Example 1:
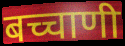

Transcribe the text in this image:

बच्चाणी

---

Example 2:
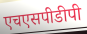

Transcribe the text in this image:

एचएसपीडीपी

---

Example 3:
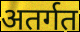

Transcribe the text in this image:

अतर्गत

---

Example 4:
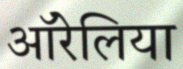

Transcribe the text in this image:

ऑरेलिया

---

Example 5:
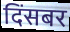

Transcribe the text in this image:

दिंसबर